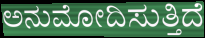
ಅನುಮೋದಿಸುತ್ತಿದೆ